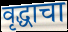
वृद्धाचा